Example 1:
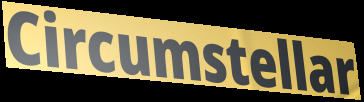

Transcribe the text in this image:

Circumstellar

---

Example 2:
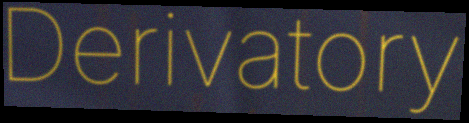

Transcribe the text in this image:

Derivatory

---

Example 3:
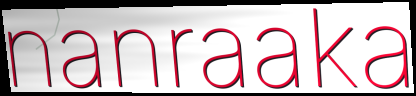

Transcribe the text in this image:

nanraaka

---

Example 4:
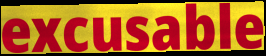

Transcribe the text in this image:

excusable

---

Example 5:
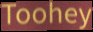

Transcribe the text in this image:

Toohey